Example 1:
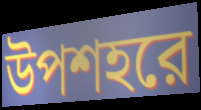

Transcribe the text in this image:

উপশহরে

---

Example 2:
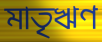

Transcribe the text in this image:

মাতৃঋণ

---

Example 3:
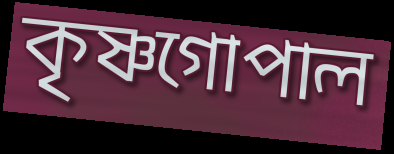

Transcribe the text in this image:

কৃষ্ণগোপাল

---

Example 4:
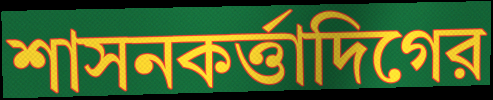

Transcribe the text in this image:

শাসনকর্ত্তাদিগের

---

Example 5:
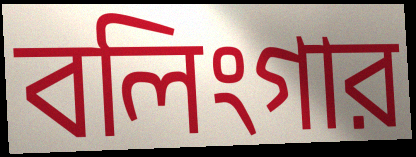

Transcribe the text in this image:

বলিংগার